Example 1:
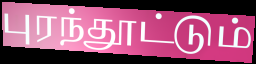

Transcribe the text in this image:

புரந்தூட்டும்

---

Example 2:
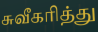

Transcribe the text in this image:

சுவீகரித்து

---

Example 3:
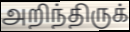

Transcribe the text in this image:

அறிந்திருக்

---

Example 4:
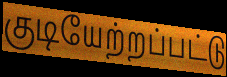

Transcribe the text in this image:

குடியேற்றப்பட்டு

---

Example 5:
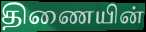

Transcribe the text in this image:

திணையின்